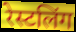
रेस्टलिंग